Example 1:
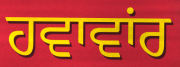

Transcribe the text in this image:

ਹਵਾਵਾਂਰ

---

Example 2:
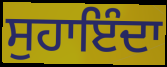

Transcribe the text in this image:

ਸੁਹਾਇੰਦਾ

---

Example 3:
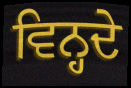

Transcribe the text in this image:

ਵਿਨ੍ਹਦੇ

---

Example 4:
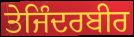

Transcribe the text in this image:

ਤੇਜਿੰਦਰਬੀਰ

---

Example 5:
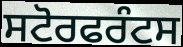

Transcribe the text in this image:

ਸਟੋਰਫਰੰਟਸ